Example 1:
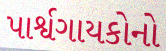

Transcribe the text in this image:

પાર્શ્વગાયકોનો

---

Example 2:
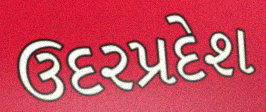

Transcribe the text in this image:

ઉદરપ્રદેશ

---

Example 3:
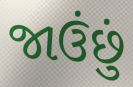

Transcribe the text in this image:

જાઉંછું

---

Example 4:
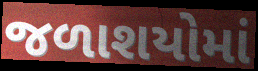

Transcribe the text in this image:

જળાશયોમાં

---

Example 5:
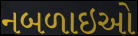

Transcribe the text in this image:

નબળાઇઓ